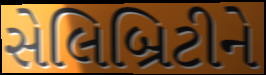
સેલિબ્રિટીને